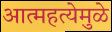
आत्महत्येमुळे